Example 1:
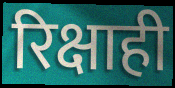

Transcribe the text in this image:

रिक्षाही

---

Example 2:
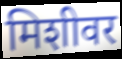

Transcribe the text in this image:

मिशीवर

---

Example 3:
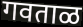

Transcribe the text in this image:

गवताळ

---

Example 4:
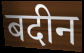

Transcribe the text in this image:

बदीन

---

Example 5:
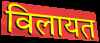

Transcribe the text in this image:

विलायत